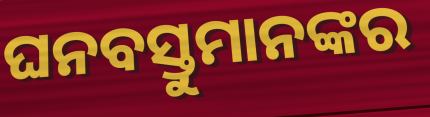
ଘନବସ୍ତୁମାନଙ୍କର